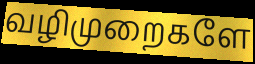
வழிமுறைகளே